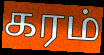
கரம்